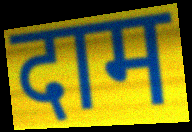
दाम